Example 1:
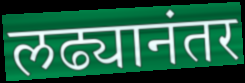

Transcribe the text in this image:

लढ्यानंतर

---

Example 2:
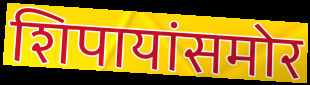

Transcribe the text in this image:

शिपायांसमोर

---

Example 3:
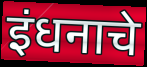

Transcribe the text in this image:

इंधनाचे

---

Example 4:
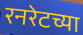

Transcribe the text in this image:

रनरेटच्या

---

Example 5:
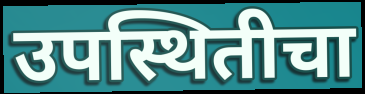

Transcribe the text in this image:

उपस्थितीचा